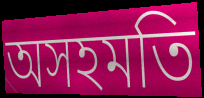
অসহমতি